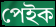
পেইক